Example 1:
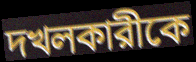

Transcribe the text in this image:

দখলকারীকে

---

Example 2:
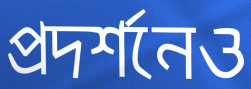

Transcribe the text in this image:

প্রদর্শনেও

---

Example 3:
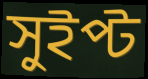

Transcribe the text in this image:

সুইপ্ট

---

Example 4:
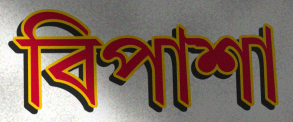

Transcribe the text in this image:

বিপাশা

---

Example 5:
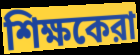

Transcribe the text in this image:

শিক্ষকেরা